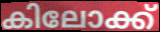
കിലോക്ക്